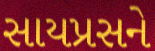
સાયપ્રસને